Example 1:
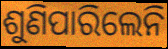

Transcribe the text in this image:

ଶୁଣିପାରିଲେନି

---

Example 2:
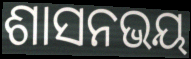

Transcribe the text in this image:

ଶାସନଭୟ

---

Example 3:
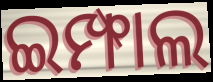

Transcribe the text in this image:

ଇମ୍ଫାଲ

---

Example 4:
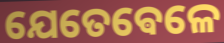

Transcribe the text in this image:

ଯେତେଵେଳେ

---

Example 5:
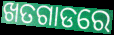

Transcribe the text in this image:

ଖତଗାଡରେ